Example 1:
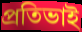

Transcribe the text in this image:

প্ৰতিভাই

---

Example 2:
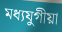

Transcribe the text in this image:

মধ্যযুগীয়া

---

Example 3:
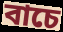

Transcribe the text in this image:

বাচে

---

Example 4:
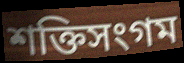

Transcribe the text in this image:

শক্তিসংগম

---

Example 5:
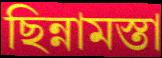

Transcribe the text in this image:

ছিন্নামস্তা